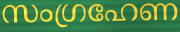
സംഗ്രഹേണ